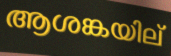
ആശങ്കയില്